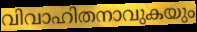
വിവാഹിതനാവുകയും